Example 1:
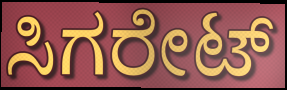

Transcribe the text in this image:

ಸಿಗರೇಟ್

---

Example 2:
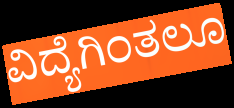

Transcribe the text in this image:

ವಿದ್ಯೆಗಿಂತಲೂ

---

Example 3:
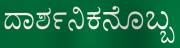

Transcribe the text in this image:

ದಾರ್ಶನಿಕನೊಬ್ಬ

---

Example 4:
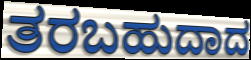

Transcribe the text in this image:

ತರಬಹುದಾದ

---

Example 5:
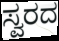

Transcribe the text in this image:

ಸ್ವರದ